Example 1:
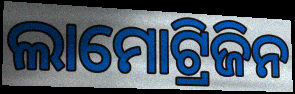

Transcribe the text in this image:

ଲାମୋଟ୍ରିଜିନ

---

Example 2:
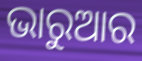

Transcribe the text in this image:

ଭାରୁଆର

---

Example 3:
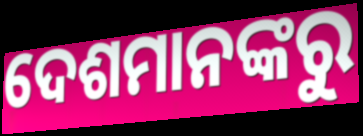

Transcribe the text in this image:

ଦେଶମାନଙ୍କରୁ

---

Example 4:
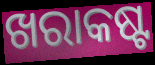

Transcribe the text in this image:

ଖରାକଷ୍ଟ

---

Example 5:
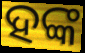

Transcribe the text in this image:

ହଙ୍କ